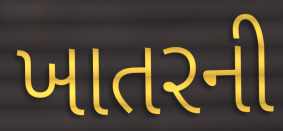
ખાતરની